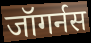
जॉगर्नस